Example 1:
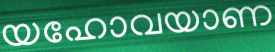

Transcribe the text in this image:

യഹോവയാണ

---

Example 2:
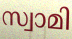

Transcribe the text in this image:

സ്വാമി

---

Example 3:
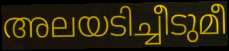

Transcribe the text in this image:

അലയടിച്ചീടുമീ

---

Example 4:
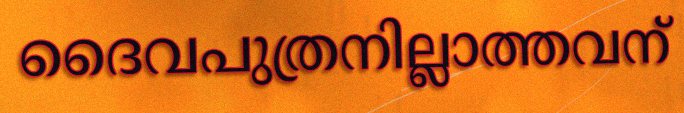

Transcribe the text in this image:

ദൈവപുത്രനില്ലാത്തവന്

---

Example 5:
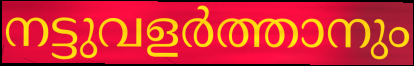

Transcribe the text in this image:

നട്ടുവളർത്താനും